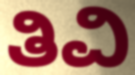
ತಿವಿ